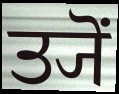
ਤ੍ਯੋਂ